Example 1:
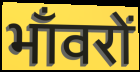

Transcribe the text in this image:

भाँवरों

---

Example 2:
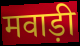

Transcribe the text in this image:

मवाड़ी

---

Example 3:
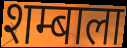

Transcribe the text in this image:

शम्बाला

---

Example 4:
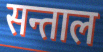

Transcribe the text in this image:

सन्ताल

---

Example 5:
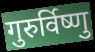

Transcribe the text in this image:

गुरुर्विष्णु